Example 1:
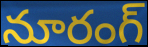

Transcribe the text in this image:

నూరంగ్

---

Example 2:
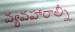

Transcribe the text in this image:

వ్యవహారాల్నీ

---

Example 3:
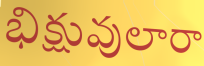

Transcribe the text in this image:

భిక్షువులారా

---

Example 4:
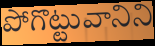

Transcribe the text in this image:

పోగొట్టువానిని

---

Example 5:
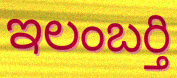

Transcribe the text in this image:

ఇలంబర్తి